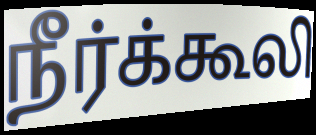
நீர்க்கூலி